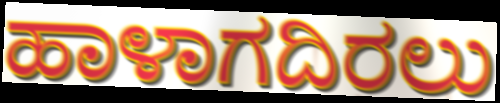
ಹಾಳಾಗದಿರಲು